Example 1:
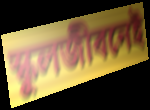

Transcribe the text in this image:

স্কুলজীবনেই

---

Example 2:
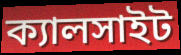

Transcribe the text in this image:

ক্যালসাইট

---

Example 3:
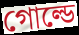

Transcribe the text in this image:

গোল্ডে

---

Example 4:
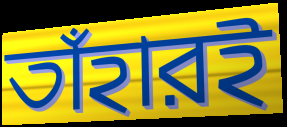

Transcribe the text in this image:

তাঁহারই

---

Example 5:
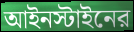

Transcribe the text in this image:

আইনস্টাইনের